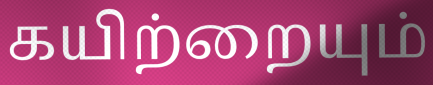
கயிற்றையும்